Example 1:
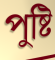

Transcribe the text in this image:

পুষ্টি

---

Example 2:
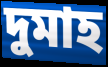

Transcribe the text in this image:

দুমাহ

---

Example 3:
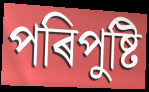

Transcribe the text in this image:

পৰিপুষ্টি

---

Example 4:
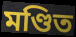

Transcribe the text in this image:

মণ্ডিত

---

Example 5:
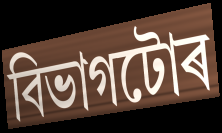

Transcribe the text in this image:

বিভাগটোৰ